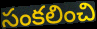
సంకలించి